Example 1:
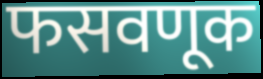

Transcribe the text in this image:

फसवणूक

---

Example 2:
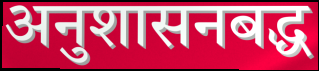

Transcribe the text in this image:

अनुशासनबद्ध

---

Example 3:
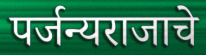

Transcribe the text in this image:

पर्जन्यराजाचे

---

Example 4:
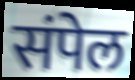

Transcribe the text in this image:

संपेल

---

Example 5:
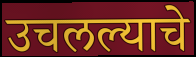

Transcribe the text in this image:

उचलल्याचे